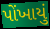
પોંખાયું